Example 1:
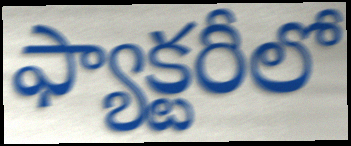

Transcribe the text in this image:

ఫ్యాక్టరీలో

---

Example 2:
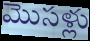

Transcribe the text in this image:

మొసళ్లు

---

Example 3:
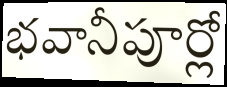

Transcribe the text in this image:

భవానీపూర్లో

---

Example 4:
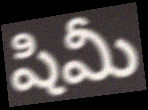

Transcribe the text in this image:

షిమీ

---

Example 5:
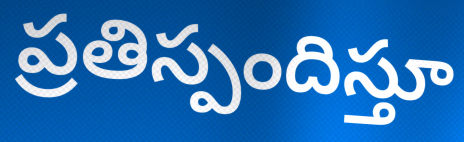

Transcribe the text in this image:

ప్రతిస్పందిస్తూ